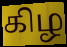
கிழ